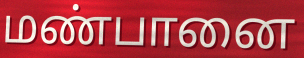
மண்பானை